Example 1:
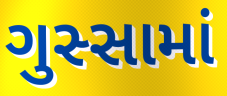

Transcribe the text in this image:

ગુસ્સામાં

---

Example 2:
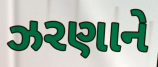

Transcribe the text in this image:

ઝરણાને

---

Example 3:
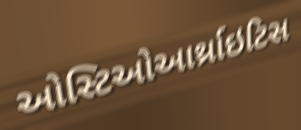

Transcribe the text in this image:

ઓસ્ટિઓઆર્થ્રાઇટિસ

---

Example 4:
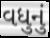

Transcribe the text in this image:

વધુનું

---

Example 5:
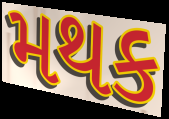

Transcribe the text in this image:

મથક